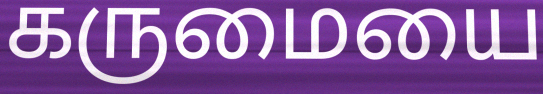
கருமையை